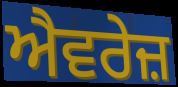
ਐਵਰੇਜ਼